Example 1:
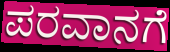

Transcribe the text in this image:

ಪರವಾನಗೆ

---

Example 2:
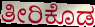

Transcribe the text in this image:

ತೀರಿಕೊಡ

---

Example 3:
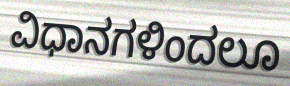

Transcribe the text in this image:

ವಿಧಾನಗಳಿಂದಲೂ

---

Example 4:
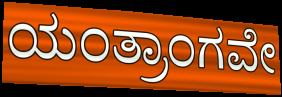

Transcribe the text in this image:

ಯಂತ್ರಾಂಗವೇ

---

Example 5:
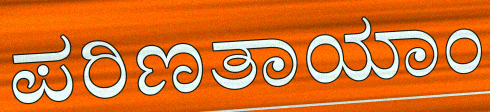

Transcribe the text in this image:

ಪರಿಣತಾಯಾಂ